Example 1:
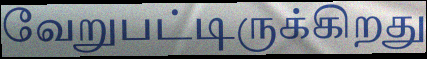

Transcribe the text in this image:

வேறுபட்டிருக்கிறது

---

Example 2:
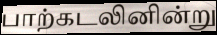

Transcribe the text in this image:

பாற்கடலினின்று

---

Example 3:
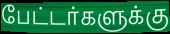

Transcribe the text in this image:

பேட்டர்களுக்கு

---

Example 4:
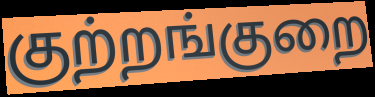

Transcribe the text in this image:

குற்றங்குறை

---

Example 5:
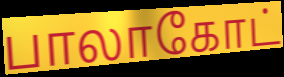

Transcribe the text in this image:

பாலாகோட்